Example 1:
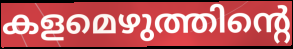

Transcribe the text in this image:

കളമെഴുത്തിന്റെ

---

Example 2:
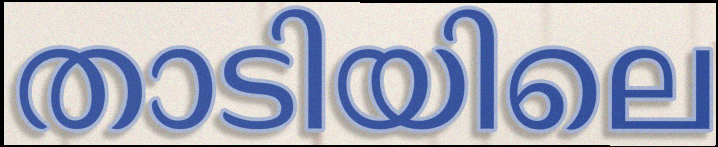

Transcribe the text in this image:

താടിയിലെ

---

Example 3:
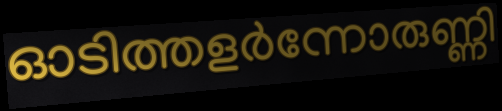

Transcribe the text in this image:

ഓടിത്തളർന്നോരുണ്ണി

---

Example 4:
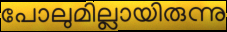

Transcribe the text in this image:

പോലുമില്ലായിരുന്നു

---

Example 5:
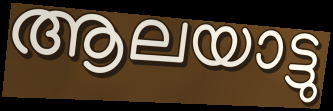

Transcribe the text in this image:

ആലയാട്ടു